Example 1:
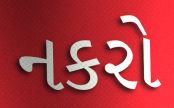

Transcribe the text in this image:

નકરો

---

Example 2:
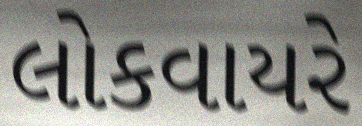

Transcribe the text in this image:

લોકવાયરે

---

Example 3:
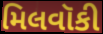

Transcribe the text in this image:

મિલવૉકી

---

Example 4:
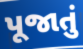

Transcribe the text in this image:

પૂજાતું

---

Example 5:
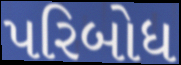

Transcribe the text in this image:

પરિબોધ